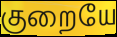
குறையே